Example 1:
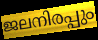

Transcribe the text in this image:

ജലനിരപ്പും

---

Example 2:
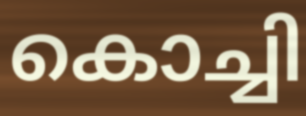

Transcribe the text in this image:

കൊച്ചി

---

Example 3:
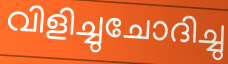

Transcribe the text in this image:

വിളിച്ചുചോദിച്ചു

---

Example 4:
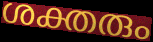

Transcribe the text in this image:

ശക്തരും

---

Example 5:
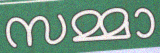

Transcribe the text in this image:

സമ്മാ